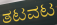
ತಟವಟ